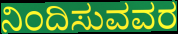
ನಿಂದಿಸುವವರ